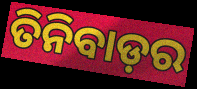
ତିନିବାଡ଼ର